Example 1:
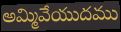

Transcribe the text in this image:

అమ్మివేయుదము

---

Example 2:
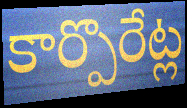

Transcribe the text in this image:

కార్పొరేట్ల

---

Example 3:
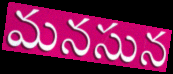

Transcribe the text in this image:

మనసున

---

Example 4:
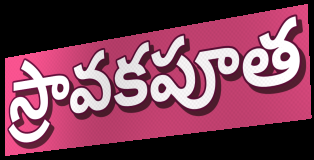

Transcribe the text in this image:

స్రావకపూత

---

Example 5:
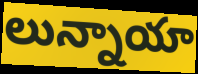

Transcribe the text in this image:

లున్నాయా